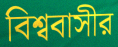
বিশ্ববাসীর